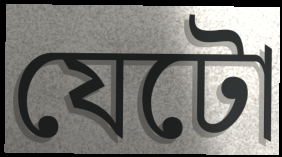
যেটো